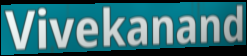
Vivekanand